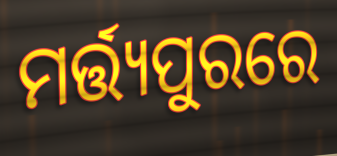
ମର୍ତ୍ତ୍ୟପୁରରେ